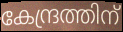
കേന്ദ്രത്തിന്